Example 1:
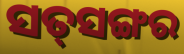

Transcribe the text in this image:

ସତ୍‌ସଙ୍ଗର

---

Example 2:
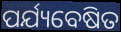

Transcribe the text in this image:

ପର୍ଯ୍ୟବେଷିତ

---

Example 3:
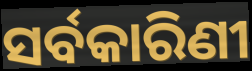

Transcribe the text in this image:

ସର୍ବକାରିଣୀ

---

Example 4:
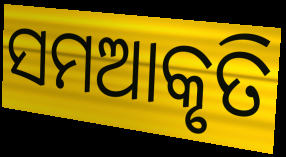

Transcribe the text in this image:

ସମଆକୃତି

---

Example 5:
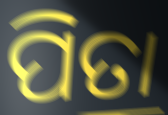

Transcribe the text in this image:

ପିତା